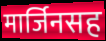
मार्जिनसह